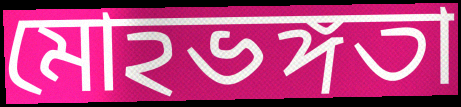
মোহভঙ্গতা